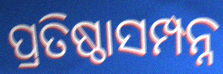
ପ୍ରତିଷ୍ଠାସମ୍ପନ୍ନ